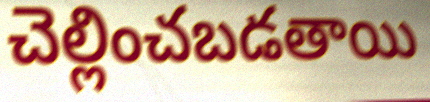
చెల్లించబడతాయి